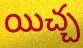
యిచ్చ